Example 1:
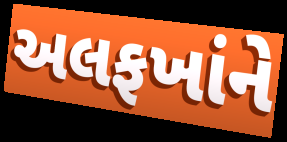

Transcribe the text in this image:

અલફખાંને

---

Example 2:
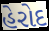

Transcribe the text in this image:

હેરોદ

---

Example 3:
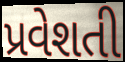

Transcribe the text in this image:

પ્રવેશતી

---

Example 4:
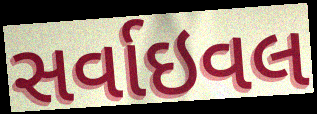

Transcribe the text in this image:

સર્વાઇવલ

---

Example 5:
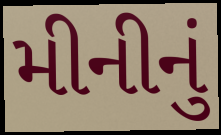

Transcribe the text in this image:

મીનીનું